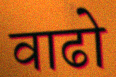
वाढो